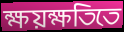
ক্ষয়ক্ষতিতে